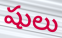
షులు